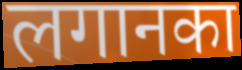
लगानका